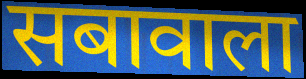
सबावाला